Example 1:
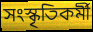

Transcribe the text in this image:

সংস্কৃতিকর্মী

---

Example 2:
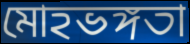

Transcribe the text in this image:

মোহভঙ্গতা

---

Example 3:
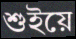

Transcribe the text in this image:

শুইয়ে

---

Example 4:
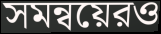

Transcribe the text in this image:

সমন্বয়েরও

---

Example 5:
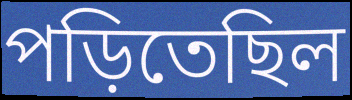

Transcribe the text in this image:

পড়িতেছিল